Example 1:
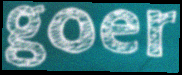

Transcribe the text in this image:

goer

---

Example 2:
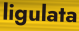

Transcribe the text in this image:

ligulata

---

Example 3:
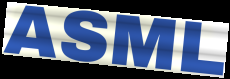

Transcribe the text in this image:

ASML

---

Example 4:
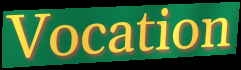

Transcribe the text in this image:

Vocation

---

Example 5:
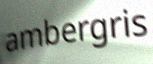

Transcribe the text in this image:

ambergris